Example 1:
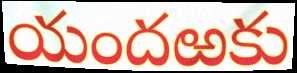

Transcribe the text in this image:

యందఱకు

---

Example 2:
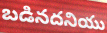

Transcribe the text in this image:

బడినదనియు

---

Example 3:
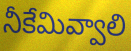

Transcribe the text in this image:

నీకేమివ్వాలి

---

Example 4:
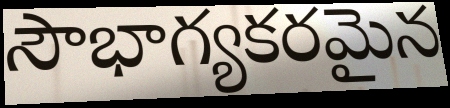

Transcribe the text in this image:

సౌభాగ్యకరమైన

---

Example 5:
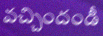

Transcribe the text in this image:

వచ్చిందండీ